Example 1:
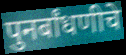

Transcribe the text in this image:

पुनर्बांधणीचे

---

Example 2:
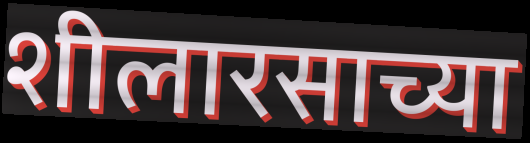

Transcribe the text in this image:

शीलारसाच्या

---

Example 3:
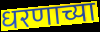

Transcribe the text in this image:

धरणाच्या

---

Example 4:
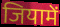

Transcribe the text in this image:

जियामें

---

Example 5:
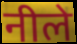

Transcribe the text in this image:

नीले